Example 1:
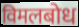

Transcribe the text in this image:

विमलबोध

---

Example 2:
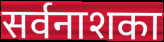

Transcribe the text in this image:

सर्वनाशका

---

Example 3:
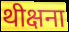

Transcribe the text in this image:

थीक्षना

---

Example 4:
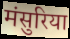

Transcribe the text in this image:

मंसुरिया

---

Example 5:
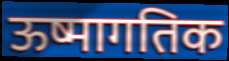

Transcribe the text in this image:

ऊष्मागतिक